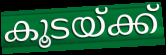
കൂടയ്ക്ക്